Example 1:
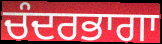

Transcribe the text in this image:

ਚੰਦਰਭਾਗਾ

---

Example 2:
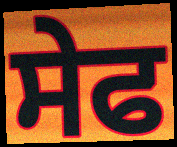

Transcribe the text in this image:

ਸੇਫ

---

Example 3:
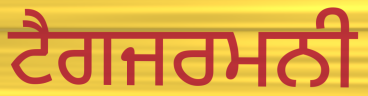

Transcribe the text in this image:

ਟੈਗਜਰਮਨੀ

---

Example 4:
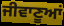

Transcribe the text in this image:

ਜੀਵਾਣੂਆਂ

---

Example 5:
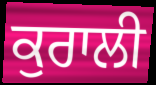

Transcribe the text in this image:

ਕੁਰਾਲੀ